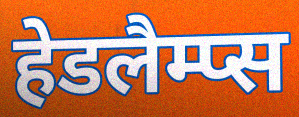
हेडलैम्प्स